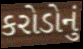
કરોડોનું